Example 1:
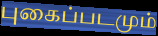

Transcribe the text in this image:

புகைப்படமும்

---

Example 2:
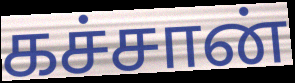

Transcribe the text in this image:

கச்சான்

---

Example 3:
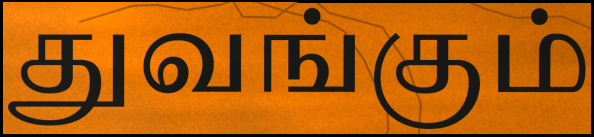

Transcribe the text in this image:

துவங்கும்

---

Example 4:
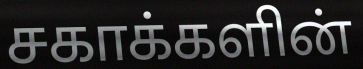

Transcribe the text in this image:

சகாக்களின்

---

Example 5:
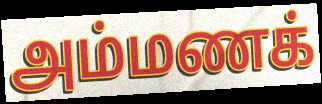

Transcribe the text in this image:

அம்மணக்